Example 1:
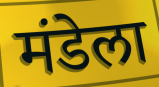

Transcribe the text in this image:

मंडेला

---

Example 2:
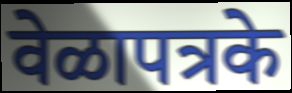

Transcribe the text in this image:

वेळापत्रके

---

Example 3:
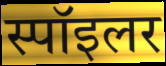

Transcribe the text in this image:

स्पॉइलर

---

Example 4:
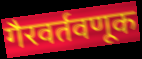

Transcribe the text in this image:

गैरवर्तवणूक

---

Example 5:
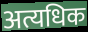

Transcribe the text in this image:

अत्यधिक